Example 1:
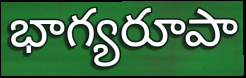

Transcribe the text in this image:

భాగ్యరూపా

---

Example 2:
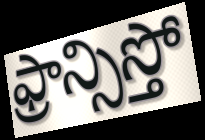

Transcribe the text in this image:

ఫ్రాన్సిస్తో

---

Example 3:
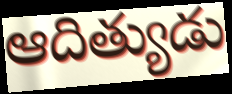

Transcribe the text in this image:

ఆదిత్యుడు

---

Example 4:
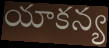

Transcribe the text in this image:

యాకన్య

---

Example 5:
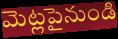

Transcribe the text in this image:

మెట్లపైనుండి